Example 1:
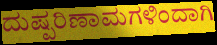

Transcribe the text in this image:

ದುಷ್ಪರಿಣಾಮಗಳಿಂದಾಗಿ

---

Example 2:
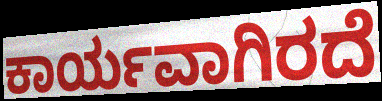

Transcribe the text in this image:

ಕಾರ್ಯವಾಗಿರದೆ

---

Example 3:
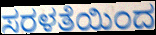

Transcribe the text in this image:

ಸರಳತೆಯಿಂದ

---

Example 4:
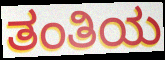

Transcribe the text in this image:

ತಂತಿಯ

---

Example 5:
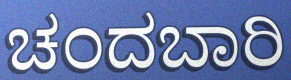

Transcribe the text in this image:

ಚಂದಬಾರಿ